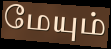
மேயும்